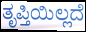
ತೃಪ್ತಿಯಿಲ್ಲದೆ